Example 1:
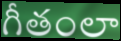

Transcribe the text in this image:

గీతంలా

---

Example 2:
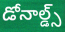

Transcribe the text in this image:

డోనాల్డ్స్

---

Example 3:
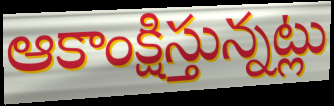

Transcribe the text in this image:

ఆకాంక్షిస్తున్నట్లు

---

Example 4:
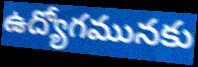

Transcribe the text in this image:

ఉద్యోగమునకు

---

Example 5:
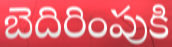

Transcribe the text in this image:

బెదిరింపుకి